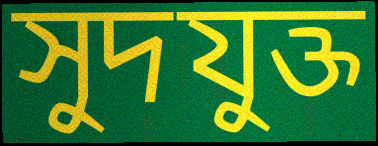
সুদযুক্ত